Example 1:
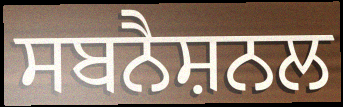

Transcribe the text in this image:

ਸਬਨੈਸ਼ਨਲ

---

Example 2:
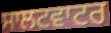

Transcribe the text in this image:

ਸਾਲਟਵਾਟਰ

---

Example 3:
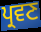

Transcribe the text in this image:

ਪ੍ਰਵਣ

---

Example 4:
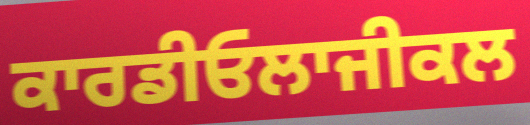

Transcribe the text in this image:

ਕਾਰਡੀਓਲਾਜੀਕਲ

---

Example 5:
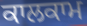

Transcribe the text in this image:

ਕਾਲਕਾਮ